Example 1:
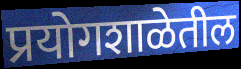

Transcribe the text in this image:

प्रयोगशाळेतील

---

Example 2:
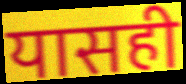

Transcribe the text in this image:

यासही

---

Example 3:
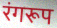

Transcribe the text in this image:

रंगरूप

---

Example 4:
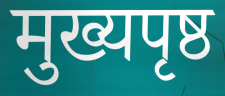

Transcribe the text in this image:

मुख्यपृष्ठ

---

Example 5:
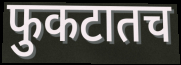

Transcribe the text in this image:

फुकटातच